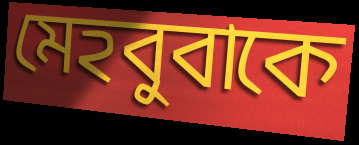
মেহবুবাকে